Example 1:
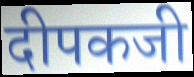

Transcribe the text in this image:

दीपकजी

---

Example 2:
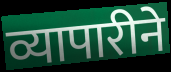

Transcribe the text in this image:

व्यापारीने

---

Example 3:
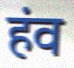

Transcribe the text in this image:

हंव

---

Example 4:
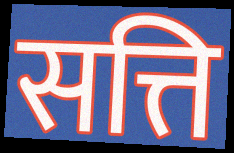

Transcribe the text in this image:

सत्ति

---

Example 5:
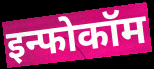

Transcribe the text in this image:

इन्फोकॉम